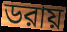
ডরায়